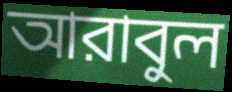
আরাবুল